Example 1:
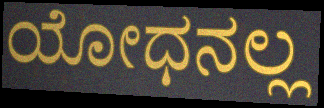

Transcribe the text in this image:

ಯೋಧನಲ್ಲ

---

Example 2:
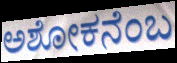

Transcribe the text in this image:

ಅಶೋಕನೆಂಬ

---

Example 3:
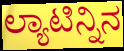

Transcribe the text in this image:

ಲ್ಯಾಟಿನ್ನಿನ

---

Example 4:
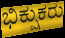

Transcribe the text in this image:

ಭಿಕ್ಷುಕರು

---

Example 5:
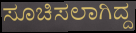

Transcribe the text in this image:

ಸೂಚಿಸಲಾಗಿದ್ದ